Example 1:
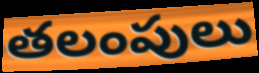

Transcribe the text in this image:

తలంపులు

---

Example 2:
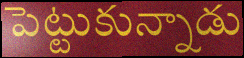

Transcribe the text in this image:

పెట్టుకున్నాడు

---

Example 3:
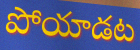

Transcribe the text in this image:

పోయాడట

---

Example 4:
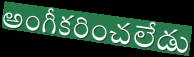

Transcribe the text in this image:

అంగీకరించలేడు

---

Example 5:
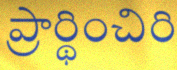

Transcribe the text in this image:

ప్రార్థించిరి